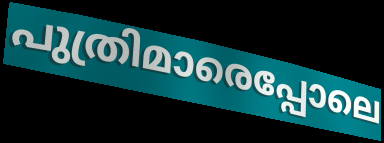
പുത്രിമാരെപ്പോലെ